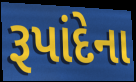
રૂપાંદેના